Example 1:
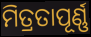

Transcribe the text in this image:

ମିତ୍ରତାପୂର୍ଣ୍ଣ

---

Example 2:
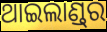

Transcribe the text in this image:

ଥାଇଲାଣ୍ଡ୍‌ର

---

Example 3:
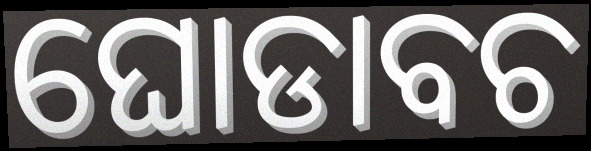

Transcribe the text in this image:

ଘୋଡାବଚ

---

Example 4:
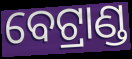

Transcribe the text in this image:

ବେଟ୍ରାଣ୍ଡ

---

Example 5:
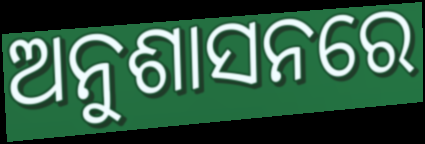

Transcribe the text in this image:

ଅନୁଶାସନରେ